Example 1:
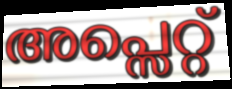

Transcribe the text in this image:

അപ്സെറ്റ്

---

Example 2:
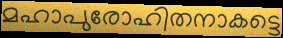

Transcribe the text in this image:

മഹാപുരോഹിതനാകട്ടെ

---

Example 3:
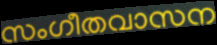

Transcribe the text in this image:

സംഗീതവാസന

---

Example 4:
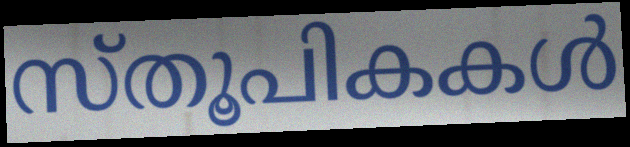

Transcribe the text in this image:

സ്തൂപികകൾ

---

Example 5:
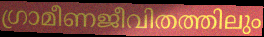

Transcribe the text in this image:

ഗ്രാമീണജീവിതത്തിലും